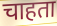
चाहता